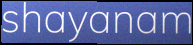
shayanam